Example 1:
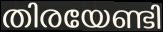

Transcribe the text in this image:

തിരയേണ്ടി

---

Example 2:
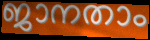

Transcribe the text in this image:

ജാനതാം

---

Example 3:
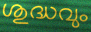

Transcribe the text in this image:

ശുദ്ധവും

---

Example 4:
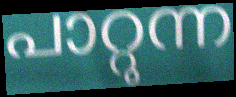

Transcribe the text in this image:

പാറ്റുന്ന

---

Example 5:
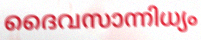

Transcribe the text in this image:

ദൈവസാന്നിധ്യം